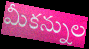
మీకన్నుల